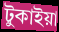
টুকাইয়া